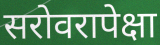
सरोवरापेक्षा